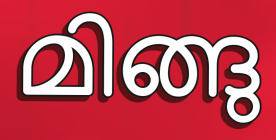
മിങ്ങു